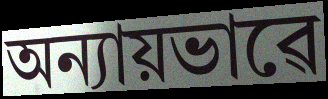
অন্যায়ভাৱে